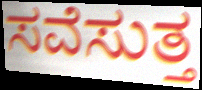
ಸವೆಸುತ್ತ